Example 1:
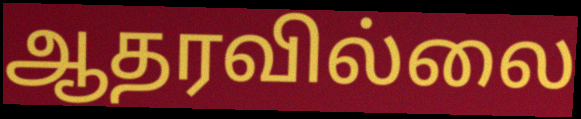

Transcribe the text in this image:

ஆதரவில்லை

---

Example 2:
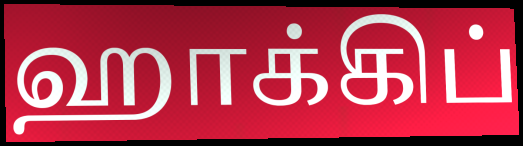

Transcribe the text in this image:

ஹாக்கிப்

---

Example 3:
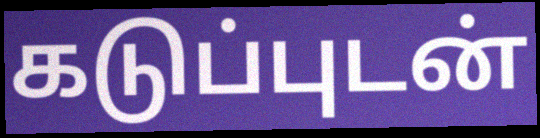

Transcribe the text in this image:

கடுப்புடன்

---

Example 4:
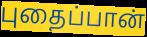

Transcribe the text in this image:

புதைப்பான்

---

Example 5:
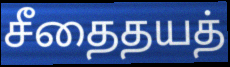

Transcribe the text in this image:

சீதைதயத்